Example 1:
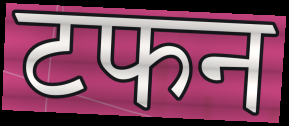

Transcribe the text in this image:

टफन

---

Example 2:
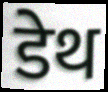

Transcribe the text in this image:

डेथ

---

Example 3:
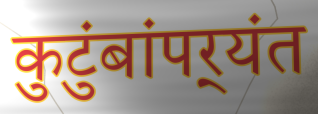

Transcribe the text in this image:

कुटुंबांपर्यंत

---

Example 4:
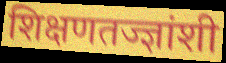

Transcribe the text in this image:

शिक्षणतज्ज्ञांशी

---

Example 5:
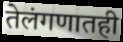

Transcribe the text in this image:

तेलंगणातही